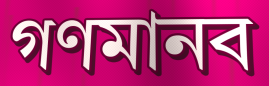
গণমানব